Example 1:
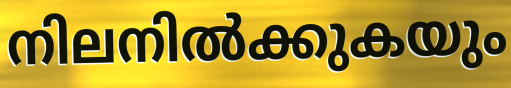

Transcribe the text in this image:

നിലനിൽക്കുകയും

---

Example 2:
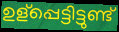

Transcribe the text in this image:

ഉള്പ്പെട്ടിട്ടുണ്ട്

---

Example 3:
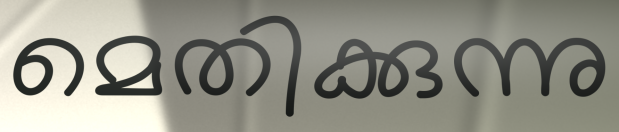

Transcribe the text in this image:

മെതിക്കുന്നു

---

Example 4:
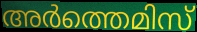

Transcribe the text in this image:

അർത്തെമിസ്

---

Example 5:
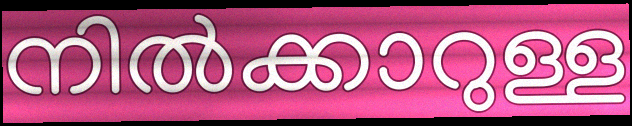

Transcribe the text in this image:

നിൽക്കാറുള്ള